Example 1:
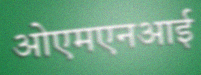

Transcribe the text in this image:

ओएमएनआई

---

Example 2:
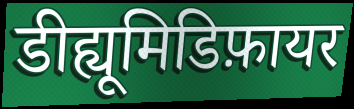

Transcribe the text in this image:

डीह्यूमिडिफ़ायर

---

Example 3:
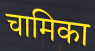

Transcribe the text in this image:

चामिका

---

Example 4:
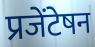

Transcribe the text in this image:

प्रजेंटेषन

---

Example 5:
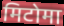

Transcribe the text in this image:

मिटोमा